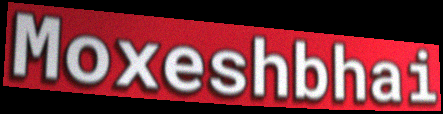
Moxeshbhai